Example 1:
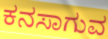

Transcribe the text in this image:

ಕನಸಾಗುವ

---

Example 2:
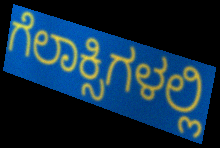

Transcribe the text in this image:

ಗೆಲಾಕ್ಸಿಗಳಲ್ಲಿ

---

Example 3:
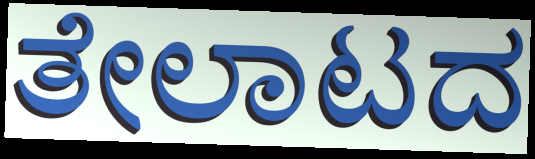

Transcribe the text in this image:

ತೇಲಾಟದ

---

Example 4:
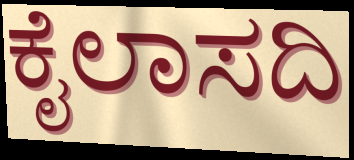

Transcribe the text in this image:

ಕೈಲಾಸದಿ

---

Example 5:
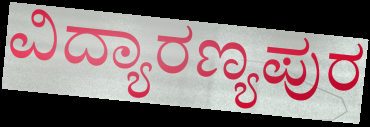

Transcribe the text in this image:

ವಿದ್ಯಾರಣ್ಯಪುರ